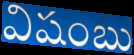
విషంబు